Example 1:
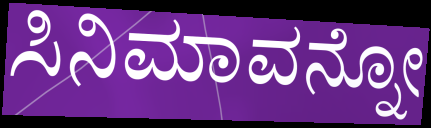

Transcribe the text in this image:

ಸಿನಿಮಾವನ್ನೋ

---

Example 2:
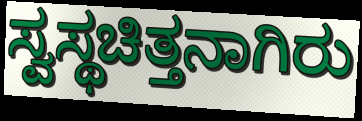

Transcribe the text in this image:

ಸ್ವಸ್ಥಚಿತ್ತನಾಗಿರು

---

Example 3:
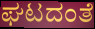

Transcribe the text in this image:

ಘಟದಂತೆ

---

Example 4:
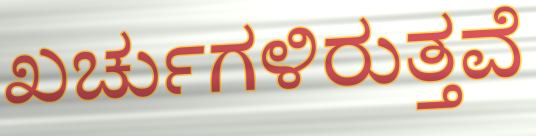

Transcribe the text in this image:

ಖರ್ಚುಗಳಿರುತ್ತವೆ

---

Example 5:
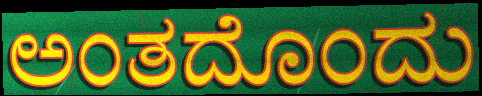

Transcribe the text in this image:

ಅಂತದೊಂದು